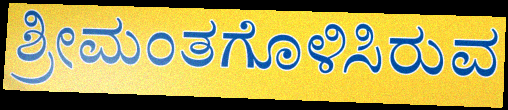
ಶ್ರೀಮಂತಗೊಳಿಸಿರುವ